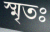
স্মৃতঃ